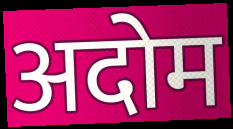
अदोम